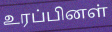
உரப்பினள்